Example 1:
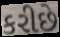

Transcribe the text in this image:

કરીછે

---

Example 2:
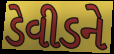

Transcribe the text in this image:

ડેવીડને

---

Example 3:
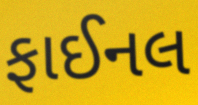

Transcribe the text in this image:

ફાઈનલ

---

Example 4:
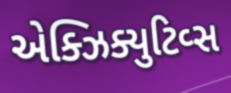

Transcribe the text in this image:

એક્ઝિક્યુટિવ્સ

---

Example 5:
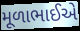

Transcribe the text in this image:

મૂળાભાઈએ